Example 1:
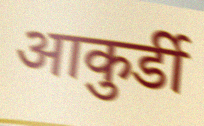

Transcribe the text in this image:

आकुर्डी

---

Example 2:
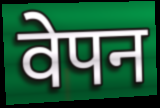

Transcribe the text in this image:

वेपन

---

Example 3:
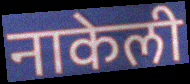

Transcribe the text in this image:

नाकेली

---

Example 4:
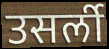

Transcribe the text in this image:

उसर्ली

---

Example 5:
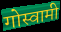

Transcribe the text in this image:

गोस्वामी